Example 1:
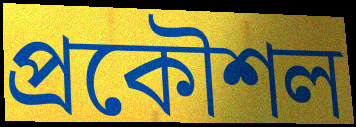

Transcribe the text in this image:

প্রকৌশল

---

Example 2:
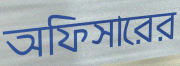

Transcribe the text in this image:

অফিসারের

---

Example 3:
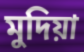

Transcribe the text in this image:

মুদিয়া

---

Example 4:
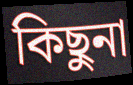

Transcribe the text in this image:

কিছুনা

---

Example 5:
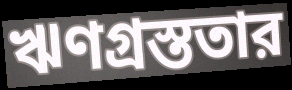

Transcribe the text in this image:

ঋণগ্রস্ততার